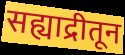
सह्याद्रीतून